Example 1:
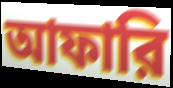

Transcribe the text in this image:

আফারি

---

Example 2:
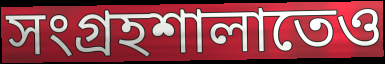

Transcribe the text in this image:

সংগ্রহশালাতেও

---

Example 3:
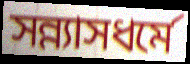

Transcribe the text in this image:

সন্ন্যাসধর্মে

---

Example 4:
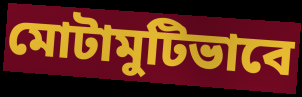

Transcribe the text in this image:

মোটামুটিভাবে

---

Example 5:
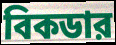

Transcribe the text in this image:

বিকডার